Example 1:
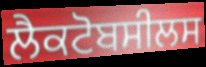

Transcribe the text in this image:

ਲੈਕਟੋਬਸੀਲਸ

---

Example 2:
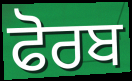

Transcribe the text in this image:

ਫੋਰਬ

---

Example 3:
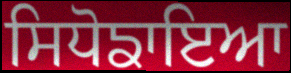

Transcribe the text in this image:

ਸਿਧੋਙਾਇਆ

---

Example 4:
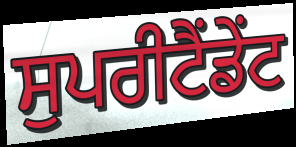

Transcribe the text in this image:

ਸੁਪਰੀਟੈਂਡੇਂਟ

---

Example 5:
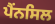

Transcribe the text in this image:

ਪੈਂਨਸਿਲ